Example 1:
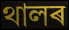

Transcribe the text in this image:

থালৰ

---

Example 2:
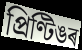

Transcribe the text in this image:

প্ৰিণ্টিঙৰ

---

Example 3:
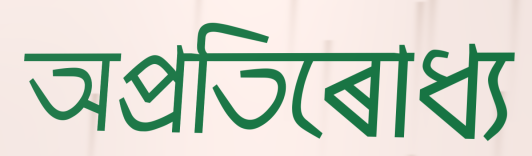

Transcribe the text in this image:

অপ্ৰতিৰোধ্য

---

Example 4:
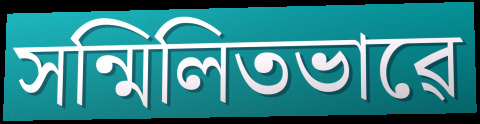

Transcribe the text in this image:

সন্মিলিতভাৱে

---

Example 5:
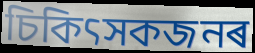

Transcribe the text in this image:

চিকিৎসকজনৰ